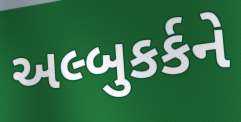
અલ્બુકર્કને